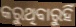
କରୁଥିବାରୁହିଁ